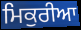
ਮਿਕੁਰੀਆ